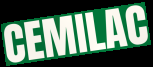
CEMILAC